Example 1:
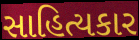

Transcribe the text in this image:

સાહિત્યકાર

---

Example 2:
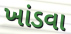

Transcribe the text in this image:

ખાંડવા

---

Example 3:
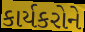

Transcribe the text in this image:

કાર્યકરોને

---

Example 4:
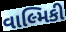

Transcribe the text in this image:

વાલ્મિકી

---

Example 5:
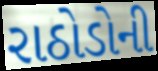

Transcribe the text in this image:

રાઠોડોની